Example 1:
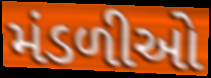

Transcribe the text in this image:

મંડળીઓ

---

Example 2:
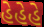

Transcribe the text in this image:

હેહેહે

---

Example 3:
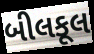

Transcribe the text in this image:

બીલકૂલ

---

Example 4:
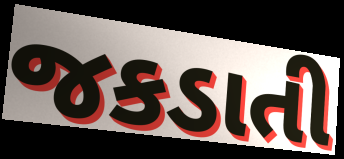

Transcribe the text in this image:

જકડાતી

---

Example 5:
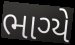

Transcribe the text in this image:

ભાગ્યે